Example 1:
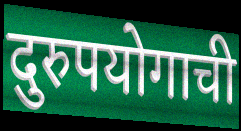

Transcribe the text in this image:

दुरुपयोगाची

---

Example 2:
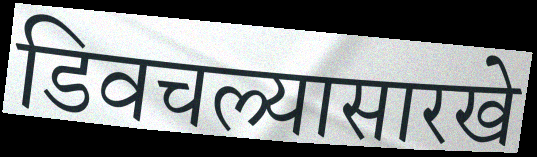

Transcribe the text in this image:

डिवचल्यासारखे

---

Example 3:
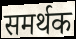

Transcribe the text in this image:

समर्थक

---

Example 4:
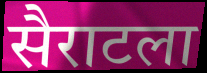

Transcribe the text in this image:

सैराटला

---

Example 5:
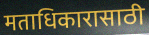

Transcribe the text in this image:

मताधिकारासाठी